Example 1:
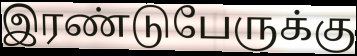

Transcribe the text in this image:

இரண்டுபேருக்கு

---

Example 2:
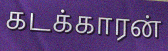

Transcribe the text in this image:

கடக்காரன்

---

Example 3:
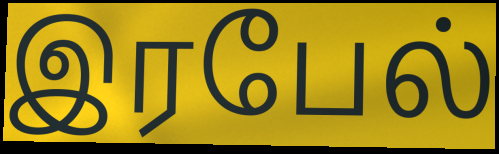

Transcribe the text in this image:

இரபேல்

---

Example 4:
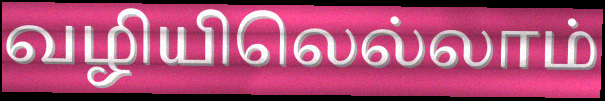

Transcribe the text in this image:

வழியிலெல்லாம்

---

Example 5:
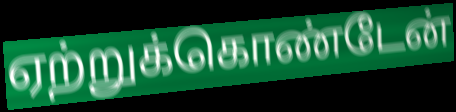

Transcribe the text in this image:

ஏற்றுக்கொண்டேன்